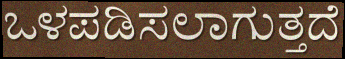
ಒಳಪಡಿಸಲಾಗುತ್ತದೆ